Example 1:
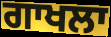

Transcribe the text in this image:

ਗਾਖਲਾ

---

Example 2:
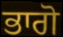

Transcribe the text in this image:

ਭਾਗੋ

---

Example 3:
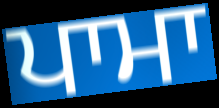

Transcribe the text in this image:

ਪਾਮਾ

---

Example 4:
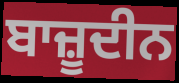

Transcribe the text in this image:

ਬਾਜ਼ੂਦੀਨ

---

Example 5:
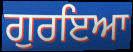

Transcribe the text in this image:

ਗੁਰਇਆ